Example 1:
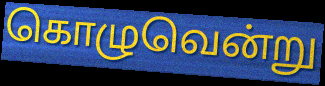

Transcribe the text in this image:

கொழுவென்று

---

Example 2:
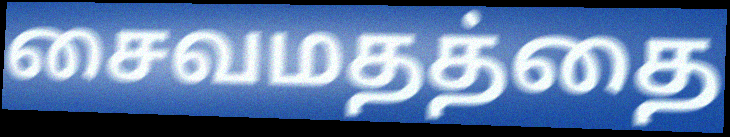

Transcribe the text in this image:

சைவமதத்தை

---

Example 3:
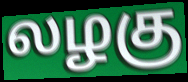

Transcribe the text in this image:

லழகு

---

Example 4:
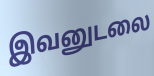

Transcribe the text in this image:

இவனுடலை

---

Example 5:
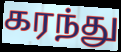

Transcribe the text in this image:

கரந்து